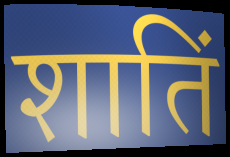
शातिं